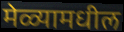
मेळ्यामधील